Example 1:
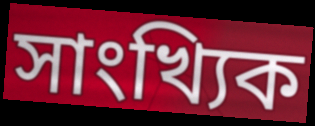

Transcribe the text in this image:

সাংখ্যিক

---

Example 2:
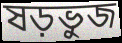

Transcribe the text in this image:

ষড়ভুজ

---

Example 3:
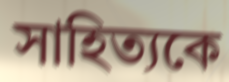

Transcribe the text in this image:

সাহিত্য়কে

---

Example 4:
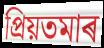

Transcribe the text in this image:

প্ৰিয়তমাৰ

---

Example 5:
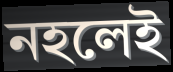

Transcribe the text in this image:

নহলেই